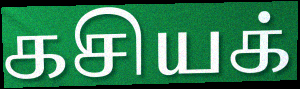
கசியக்